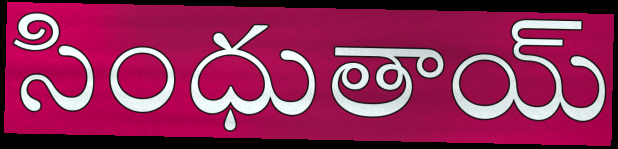
సింధుతాయ్